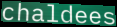
chaldees